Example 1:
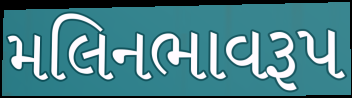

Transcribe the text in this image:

મલિનભાવરૂપ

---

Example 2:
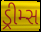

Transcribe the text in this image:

ડ્રીમ્સ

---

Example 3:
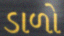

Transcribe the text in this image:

ડાળો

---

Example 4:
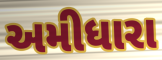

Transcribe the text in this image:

અમીધારા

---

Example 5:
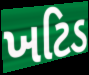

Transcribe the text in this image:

ખટિડ